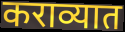
कराव्यात